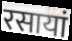
रसायां